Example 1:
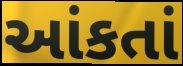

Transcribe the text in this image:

આંકતાં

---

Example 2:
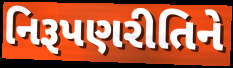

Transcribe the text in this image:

નિરૂપણરીતિને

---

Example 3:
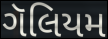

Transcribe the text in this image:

ગૅલિયમ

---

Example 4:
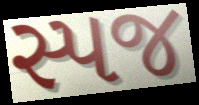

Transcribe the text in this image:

સ્પજ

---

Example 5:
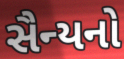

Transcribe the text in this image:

સૈન્યનો